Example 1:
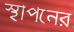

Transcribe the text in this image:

স্থাপনের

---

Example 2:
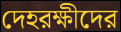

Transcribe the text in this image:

দেহরক্ষীদের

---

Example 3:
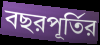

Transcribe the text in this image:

বছরপূর্তির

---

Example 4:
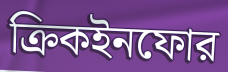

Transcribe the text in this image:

ক্রিকইনফোর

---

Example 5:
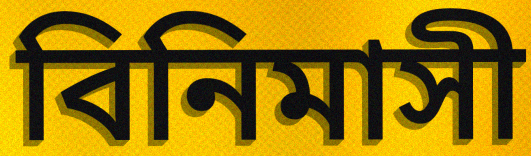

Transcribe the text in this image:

বিনিমাসী